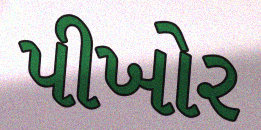
પીખોર